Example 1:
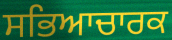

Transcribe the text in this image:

ਸਭਿਆਚਾਰਕ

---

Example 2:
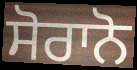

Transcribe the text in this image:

ਸੋਰਾਨੋ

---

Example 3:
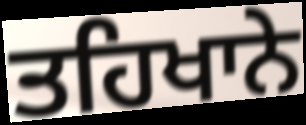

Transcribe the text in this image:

ਤਹਿਖਾਨੇ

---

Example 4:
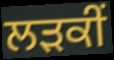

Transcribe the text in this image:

ਲੜਕੀਂ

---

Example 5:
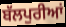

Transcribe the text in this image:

ਬੱਲਪੁਰੀਆਂ